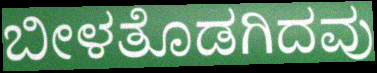
ಬೀಳತೊಡಗಿದವು